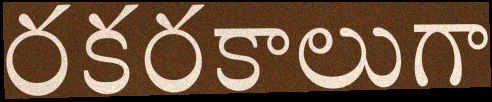
రకరకాలుగా